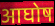
आघोष